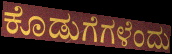
ಕೊಡುಗೆಗಳೆಂದು